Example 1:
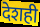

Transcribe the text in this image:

देशही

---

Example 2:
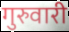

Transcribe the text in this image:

गुरुवारी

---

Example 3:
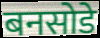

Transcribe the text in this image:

बनसोडे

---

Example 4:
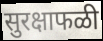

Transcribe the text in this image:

सुरक्षाफळी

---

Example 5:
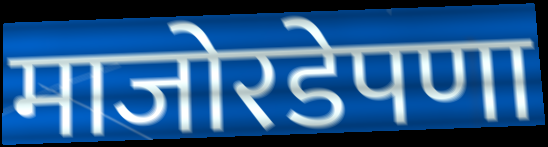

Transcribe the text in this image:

माजोरडेपणा